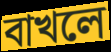
বাখলে